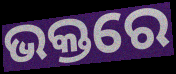
ଭକ୍ତରେ